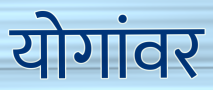
योगांवर